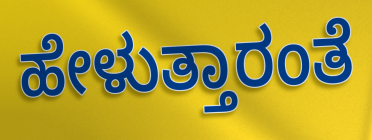
ಹೇಳುತ್ತಾರಂತೆ